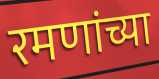
रमणांच्या